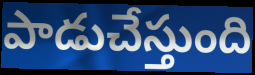
పాడుచేస్తుంది